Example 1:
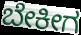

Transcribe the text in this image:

ಬೇಕೀಗ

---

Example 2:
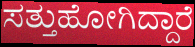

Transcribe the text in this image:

ಸತ್ತುಹೋಗಿದ್ದಾರೆ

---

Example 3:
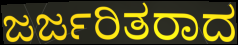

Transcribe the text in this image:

ಜರ್ಜರಿತರಾದ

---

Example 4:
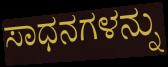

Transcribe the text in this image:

ಸಾಧನಗಳನ್ನು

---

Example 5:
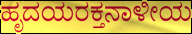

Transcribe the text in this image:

ಹೃದಯರಕ್ತನಾಳೀಯ